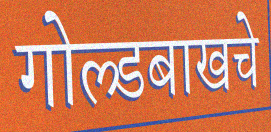
गोल्डबाखचे